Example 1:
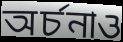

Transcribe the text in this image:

অর্চনাও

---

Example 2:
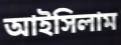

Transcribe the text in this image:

আইসিলাম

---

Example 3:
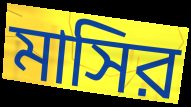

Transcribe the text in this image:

মাসির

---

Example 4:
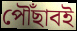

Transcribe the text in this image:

পৌঁছাবই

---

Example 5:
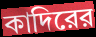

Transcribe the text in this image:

কাদিরের